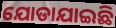
ଯୋଡାଯାଇଛି